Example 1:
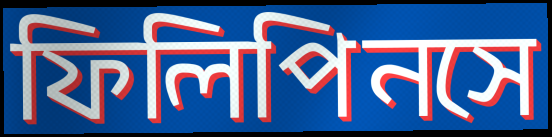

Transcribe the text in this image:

ফিলিপিনসে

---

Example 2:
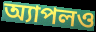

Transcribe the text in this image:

অ্যাপলও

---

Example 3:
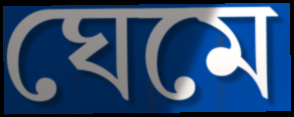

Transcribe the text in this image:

ঘেমে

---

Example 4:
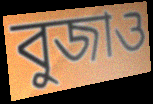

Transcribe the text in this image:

বুজাও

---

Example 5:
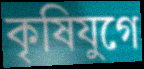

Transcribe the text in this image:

কৃষিযুগে